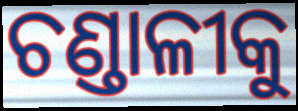
ଚଣ୍ଡାଳୀକୁ